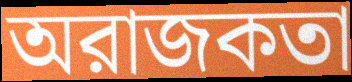
অরাজকতা